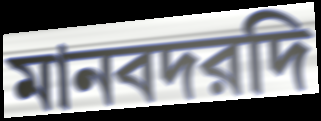
মানবদরদি